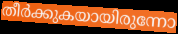
തീർക്കുകയായിരുന്നോ